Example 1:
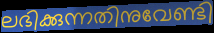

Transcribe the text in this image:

ലഭിക്കുന്നതിനുവേണ്ടി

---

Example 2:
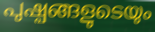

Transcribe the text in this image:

പുഷ്പങ്ങളുടെയും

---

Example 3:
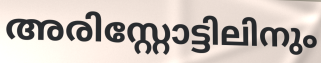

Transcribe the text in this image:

അരിസ്റ്റോട്ടിലിനും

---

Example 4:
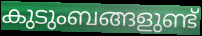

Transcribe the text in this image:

കുടുംബങ്ങളുണ്ട്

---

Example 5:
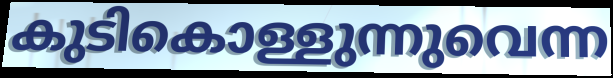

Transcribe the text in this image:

കുടികൊള്ളുന്നുവെന്ന